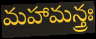
మహామన్త్రః